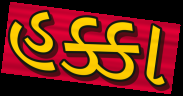
હક્કા